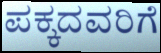
ಪಕ್ಕದವರಿಗೆ